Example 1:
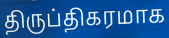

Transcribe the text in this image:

திருப்திகரமாக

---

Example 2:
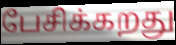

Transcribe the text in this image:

பேசிக்கறது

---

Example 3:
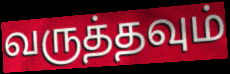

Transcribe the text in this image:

வருத்தவும்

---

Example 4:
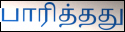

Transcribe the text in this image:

பாரித்தது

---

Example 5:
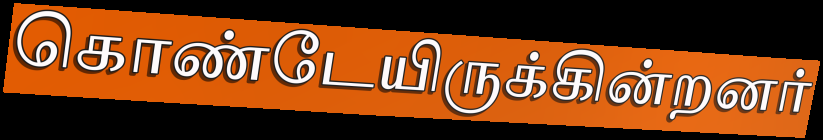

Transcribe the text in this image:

கொண்டேயிருக்கின்றனர்